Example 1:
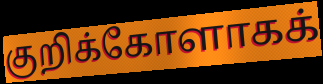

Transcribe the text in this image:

குறிக்கோளாகக்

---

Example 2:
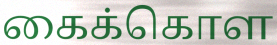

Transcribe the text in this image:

கைக்கொள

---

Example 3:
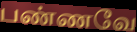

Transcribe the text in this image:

பண்ணவே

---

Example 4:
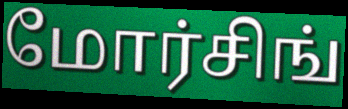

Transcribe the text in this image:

மோர்சிங்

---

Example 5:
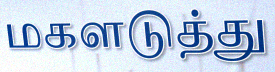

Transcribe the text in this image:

மகளடுத்து